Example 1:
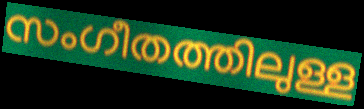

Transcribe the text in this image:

സംഗീതത്തിലുള്ള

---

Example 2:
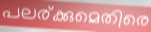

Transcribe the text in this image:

പലര്ക്കുമെതിരെ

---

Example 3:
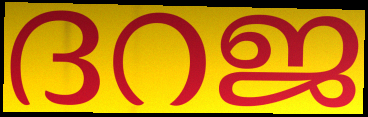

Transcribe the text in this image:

ദറജ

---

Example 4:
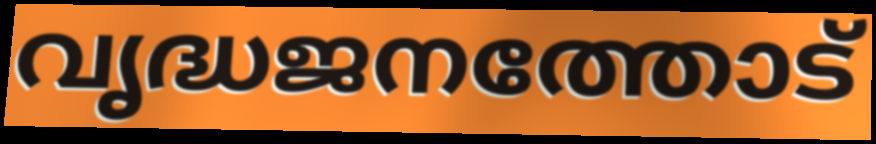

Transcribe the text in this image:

വൃദ്ധജനത്തോട്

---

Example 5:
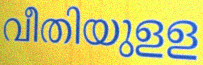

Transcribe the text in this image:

വീതിയുളള